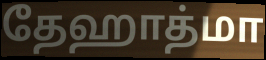
தேஹாத்மா